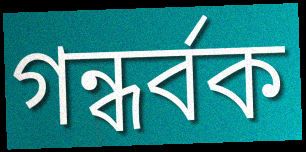
গন্ধৰ্বক